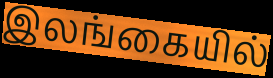
இலங்கையில்